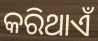
କରିଥାଏଁ